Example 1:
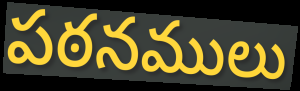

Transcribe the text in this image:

పఠనములు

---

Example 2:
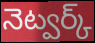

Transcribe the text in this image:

నెట్వర్క్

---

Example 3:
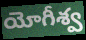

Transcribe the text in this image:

యోగీశ్వ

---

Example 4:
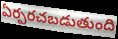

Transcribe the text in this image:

ఏర్పరచబడుతుంది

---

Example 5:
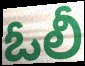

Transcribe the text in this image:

ఓలీ